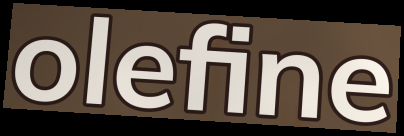
olefine